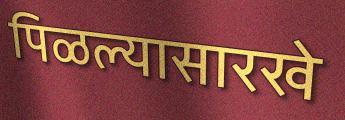
पिळल्यासारखे